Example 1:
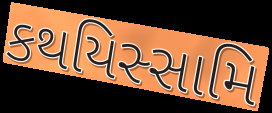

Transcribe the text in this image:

કથયિસ્સામિ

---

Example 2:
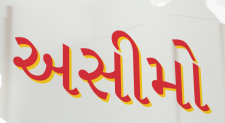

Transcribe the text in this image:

અસીમો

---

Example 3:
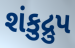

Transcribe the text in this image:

શંકુદ્રુપ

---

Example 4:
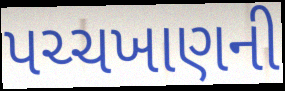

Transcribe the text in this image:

પચ્ચખાણની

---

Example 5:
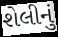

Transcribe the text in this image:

શેલીનું